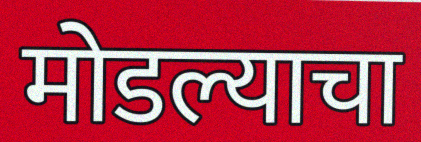
मोडल्याचा